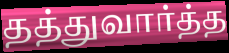
தத்துவார்த்த